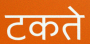
टकते